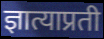
ज्ञात्याप्रती